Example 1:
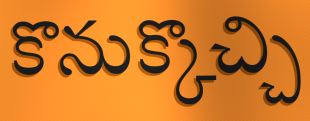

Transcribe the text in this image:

కొనుక్కొచ్చి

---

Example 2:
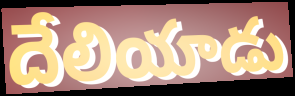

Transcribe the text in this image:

దేలియాడు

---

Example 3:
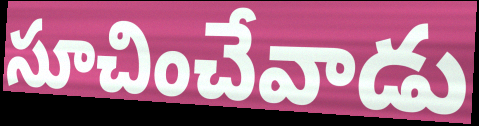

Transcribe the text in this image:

సూచించేవాడు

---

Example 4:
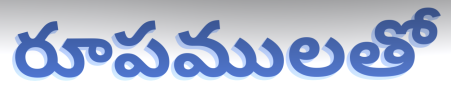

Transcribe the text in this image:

రూపములతో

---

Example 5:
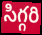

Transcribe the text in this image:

సిగ్గరి